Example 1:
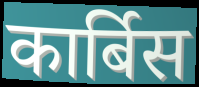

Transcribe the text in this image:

कार्बिस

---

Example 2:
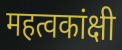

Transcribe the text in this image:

महत्वकांक्षी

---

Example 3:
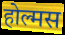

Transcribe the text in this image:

होल्मस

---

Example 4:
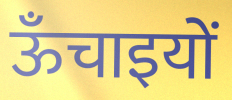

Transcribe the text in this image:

ऊँचाइयों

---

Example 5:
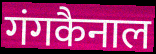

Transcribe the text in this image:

गंगकैनाल